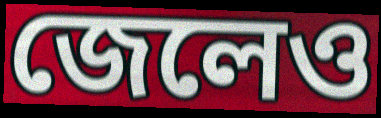
জেলেও